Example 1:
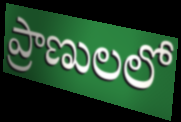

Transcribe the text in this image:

ప్రాణులలో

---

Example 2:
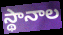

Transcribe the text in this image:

స్థానాల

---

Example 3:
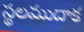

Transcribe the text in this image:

స్థలముదాక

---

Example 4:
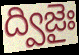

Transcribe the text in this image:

ద్విజైః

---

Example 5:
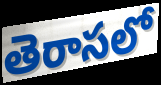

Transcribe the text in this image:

తెరాసలో